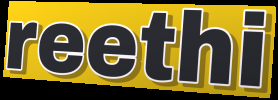
reethi